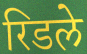
रिडले